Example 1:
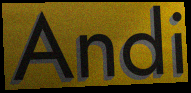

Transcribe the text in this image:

Andi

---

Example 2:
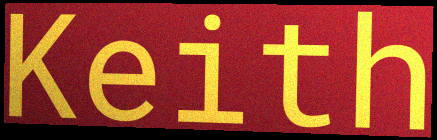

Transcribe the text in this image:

Keith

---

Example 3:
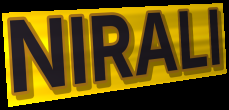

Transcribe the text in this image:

NIRALI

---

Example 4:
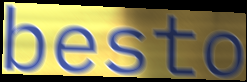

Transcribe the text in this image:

besto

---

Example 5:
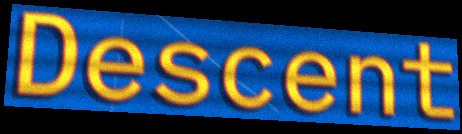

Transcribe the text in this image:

Descent